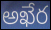
అఖేర